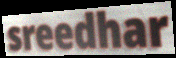
sreedhar